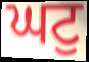
ਘਟੁ